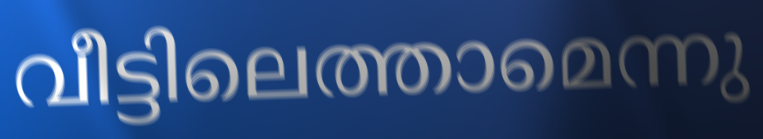
വീട്ടിലെത്താമെന്നു